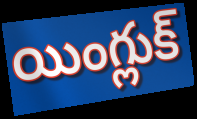
యింగ్లుక్